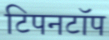
टिपनटॉप